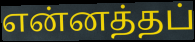
என்னத்தப்